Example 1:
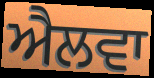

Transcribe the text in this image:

ਐਲਵਾ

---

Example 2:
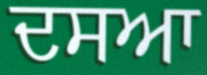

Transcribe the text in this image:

ਦਸਆ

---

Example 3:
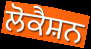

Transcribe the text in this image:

ਲੋਕੈਸ਼ਨ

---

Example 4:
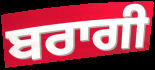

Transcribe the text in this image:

ਬਰਾਗੀ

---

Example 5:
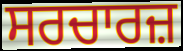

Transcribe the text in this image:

ਸਰਚਾਰਜ਼